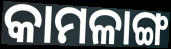
କାମଳାଙ୍ଗ